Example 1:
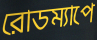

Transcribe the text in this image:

রোডম্যাপে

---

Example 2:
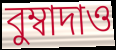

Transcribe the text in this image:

বুম্বাদাও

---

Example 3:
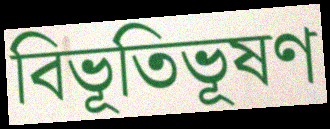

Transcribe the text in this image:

বিভূতিভূষণ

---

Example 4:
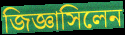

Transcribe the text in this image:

জিজ্ঞাসিলেন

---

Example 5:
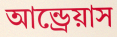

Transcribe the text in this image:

আন্ড্রেয়াস